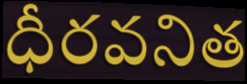
ధీరవనిత